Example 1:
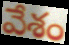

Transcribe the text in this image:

వేశం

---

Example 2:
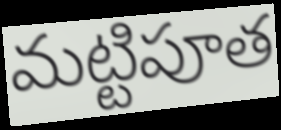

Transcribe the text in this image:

మట్టిపూత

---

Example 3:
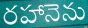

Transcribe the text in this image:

రహానెను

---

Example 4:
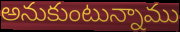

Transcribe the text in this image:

అనుకుంటున్నాము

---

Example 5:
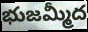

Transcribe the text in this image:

భుజమ్మీద